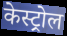
केस्ट्रोल